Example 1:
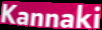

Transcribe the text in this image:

Kannaki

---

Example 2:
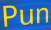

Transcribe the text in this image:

Pun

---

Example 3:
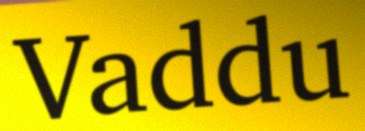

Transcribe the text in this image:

Vaddu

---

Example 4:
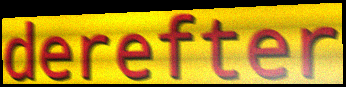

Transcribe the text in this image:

derefter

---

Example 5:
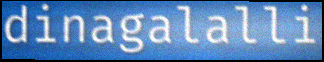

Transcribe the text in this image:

dinagalalli